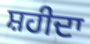
ਸ਼ਹੀਦਾ